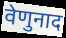
वेणुनाद